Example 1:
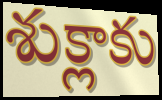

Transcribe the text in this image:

శుక్లాకు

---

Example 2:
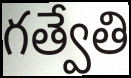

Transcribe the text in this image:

గత్వేతి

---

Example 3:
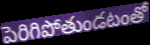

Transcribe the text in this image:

పెరిగిపోతుండటంతో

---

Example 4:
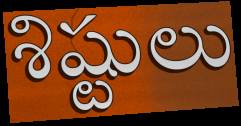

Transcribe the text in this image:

శిష్టులు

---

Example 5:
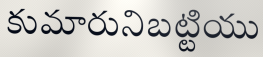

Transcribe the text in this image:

కుమారునిబట్టియు